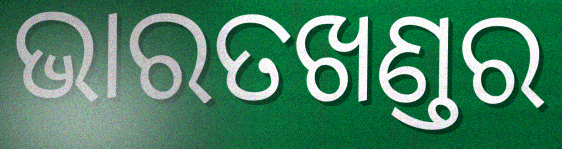
ଭାରତଖଣ୍ଡର